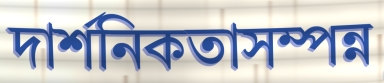
দার্শনিকতাসম্পন্ন